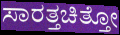
ಸಾರತ್ತಚಿತ್ತೋ